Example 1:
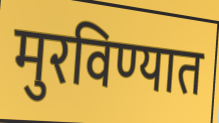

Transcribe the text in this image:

मुरविण्यात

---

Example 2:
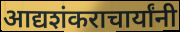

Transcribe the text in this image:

आद्यशंकराचार्यांनी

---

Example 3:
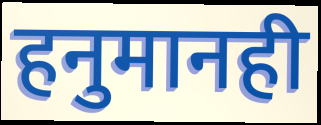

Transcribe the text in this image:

हनुमानही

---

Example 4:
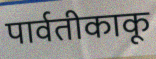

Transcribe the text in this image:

पार्वतीकाकू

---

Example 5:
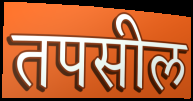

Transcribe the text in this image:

तपसील